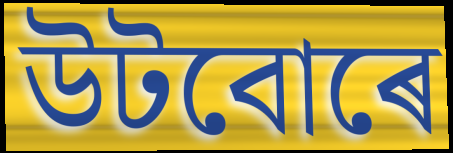
উটবোৰে